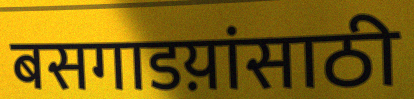
बसगाडय़ांसाठी